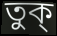
তুক্